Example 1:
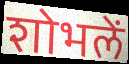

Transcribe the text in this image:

शोभलें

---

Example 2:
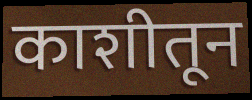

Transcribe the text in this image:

काशीतून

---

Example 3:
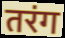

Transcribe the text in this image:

तरंग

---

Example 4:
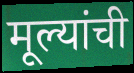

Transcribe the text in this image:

मूल्यांची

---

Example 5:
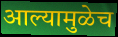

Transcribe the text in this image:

आल्यामुळेच